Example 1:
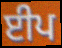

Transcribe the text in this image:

ਈਪ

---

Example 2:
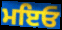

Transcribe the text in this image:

ਮਇਓ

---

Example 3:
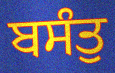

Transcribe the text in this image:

ਬਸੰਤੁ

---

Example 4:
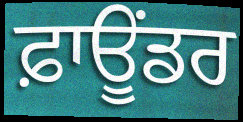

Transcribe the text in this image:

ਫ਼ਾਊਂਡਰ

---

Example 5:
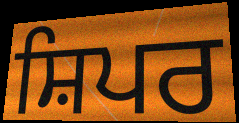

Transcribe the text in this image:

ਸ਼ਿਪਰ